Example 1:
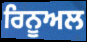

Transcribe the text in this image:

ਰਿਨੂਅਲ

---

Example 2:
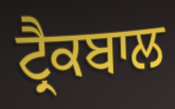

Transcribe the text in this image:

ਟ੍ਰੈਕਬਾਲ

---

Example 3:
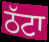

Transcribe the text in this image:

ਠੱਟਾ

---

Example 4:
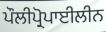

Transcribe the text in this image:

ਪੌਲੀਪ੍ਰੋਪਾਈਲੀਨ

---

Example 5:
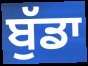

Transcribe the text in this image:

ਬੁੱਡਾ